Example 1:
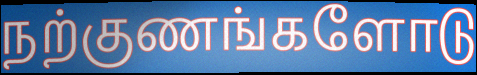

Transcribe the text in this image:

நற்குணங்களோடு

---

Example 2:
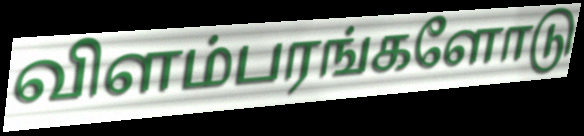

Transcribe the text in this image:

விளம்பரங்களோடு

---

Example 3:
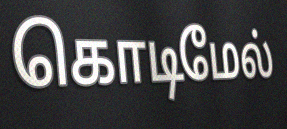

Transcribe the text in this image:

கொடிமேல்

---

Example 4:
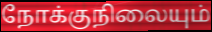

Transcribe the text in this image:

நோக்குநிலையும்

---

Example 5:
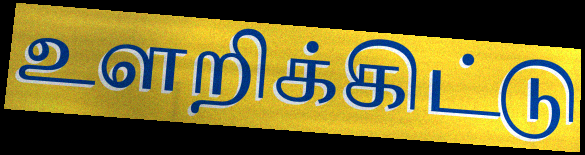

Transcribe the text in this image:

உளறிக்கிட்டு